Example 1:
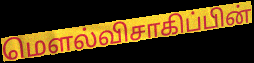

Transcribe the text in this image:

மௌல்விசாகிப்பின்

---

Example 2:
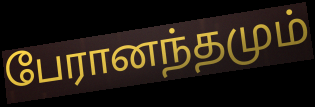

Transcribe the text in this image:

பேரானந்தமும்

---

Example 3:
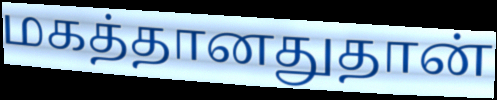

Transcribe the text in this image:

மகத்தானதுதான்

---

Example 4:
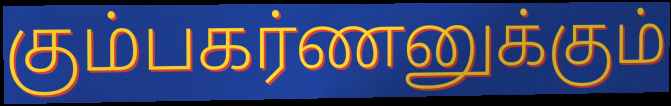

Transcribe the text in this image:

கும்பகர்ணனுக்கும்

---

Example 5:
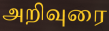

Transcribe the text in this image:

அறிவுரை